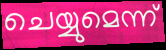
ചെയ്യുമെന്ന്